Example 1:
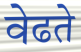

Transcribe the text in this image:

वेढते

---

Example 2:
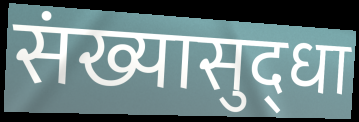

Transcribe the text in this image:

संख्यासुद्धा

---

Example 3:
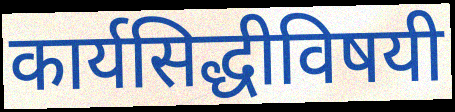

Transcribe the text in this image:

कार्यसिद्धीविषयी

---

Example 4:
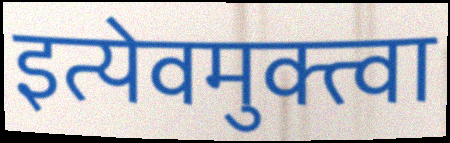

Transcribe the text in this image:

इत्येवमुक्त्वा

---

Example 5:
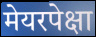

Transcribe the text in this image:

मेयरपेक्षा